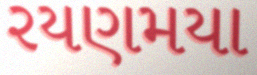
રયણમયા